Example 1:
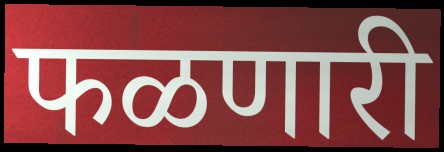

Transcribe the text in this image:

फळणारी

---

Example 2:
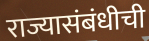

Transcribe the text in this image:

राज्यासंबंधीची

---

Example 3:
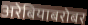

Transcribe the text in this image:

अरेबियाबरोबर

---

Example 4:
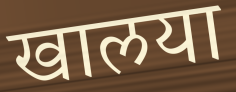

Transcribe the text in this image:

खालया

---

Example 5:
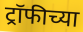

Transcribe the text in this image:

ट्रॉफीच्या